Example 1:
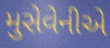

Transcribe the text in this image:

મુસેવેનીએ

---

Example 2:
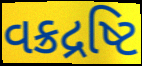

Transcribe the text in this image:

વક્રદ્રષ્ટિ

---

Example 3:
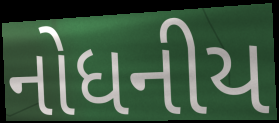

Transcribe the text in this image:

નોધનીય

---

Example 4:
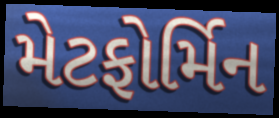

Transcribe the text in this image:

મેટફોર્મિન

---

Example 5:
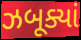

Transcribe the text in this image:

ઝબૂક્યાં